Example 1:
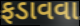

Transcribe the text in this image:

ફડાવવા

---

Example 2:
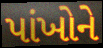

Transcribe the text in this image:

પાંખોને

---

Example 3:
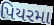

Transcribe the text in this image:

પિયરમા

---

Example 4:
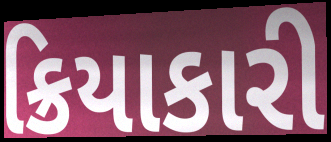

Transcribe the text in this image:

ક્રિયાકારી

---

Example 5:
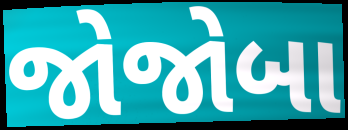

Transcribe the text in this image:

જોજોબા